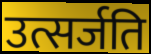
उत्सर्जति